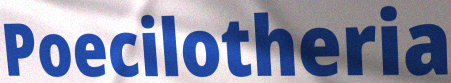
Poecilotheria